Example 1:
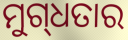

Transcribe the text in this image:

ମୁଗ୍‍ଧତାର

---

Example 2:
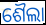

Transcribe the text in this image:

ଶୈଲା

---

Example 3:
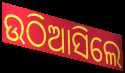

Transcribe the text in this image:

ଉଠିଆସିଲେ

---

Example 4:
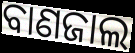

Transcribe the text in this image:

ବାଣଜାଲ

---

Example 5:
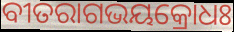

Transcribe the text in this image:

ବୀତରାଗଭୟକ୍ରୋଧଃ